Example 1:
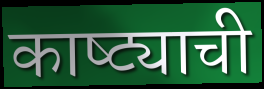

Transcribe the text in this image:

काष्ट्याची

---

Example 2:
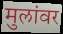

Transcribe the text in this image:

मुलांवर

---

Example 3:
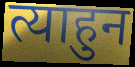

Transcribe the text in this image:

त्याहुन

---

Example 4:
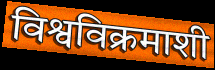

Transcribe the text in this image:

विश्वविक्रमाशी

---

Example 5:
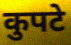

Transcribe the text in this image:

कुपटे